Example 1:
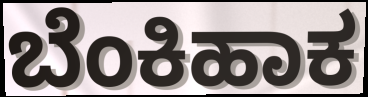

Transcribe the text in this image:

ಬೆಂಕಿಹಾಕ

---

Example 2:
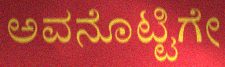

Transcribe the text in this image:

ಅವನೊಟ್ಟಿಗೇ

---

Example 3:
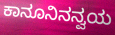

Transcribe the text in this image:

ಕಾನೂನಿನನ್ವಯ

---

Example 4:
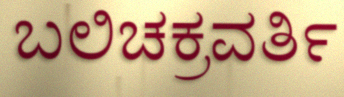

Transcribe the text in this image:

ಬಲಿಚಕ್ರವರ್ತಿ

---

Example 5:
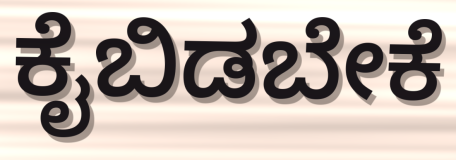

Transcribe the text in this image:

ಕೈಬಿಡಬೇಕೆ